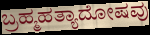
ಬ್ರಹ್ಮಹತ್ಯಾದೋಷವು